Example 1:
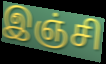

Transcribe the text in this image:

இஞ்சி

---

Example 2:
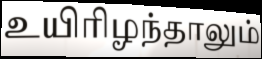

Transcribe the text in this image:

உயிரிழந்தாலும்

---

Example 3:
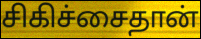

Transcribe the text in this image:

சிகிச்சைதான்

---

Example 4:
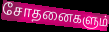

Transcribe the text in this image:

சோதனைகளும்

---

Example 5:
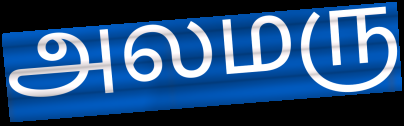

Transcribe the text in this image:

அலமரு